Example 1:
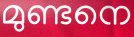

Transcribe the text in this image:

മുണ്ടനെ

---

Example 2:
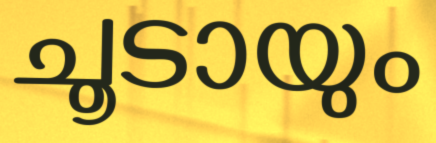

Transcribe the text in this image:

ചൂടായും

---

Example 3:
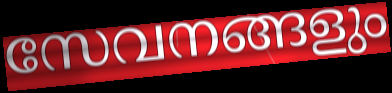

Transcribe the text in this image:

സേവനങ്ങളും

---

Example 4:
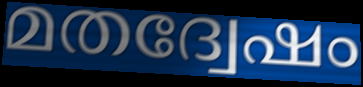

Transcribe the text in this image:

മതദ്വേഷം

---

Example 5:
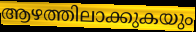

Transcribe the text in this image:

ആഴത്തിലാക്കുകയും